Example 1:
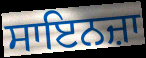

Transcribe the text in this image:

ਸਾਇਨਜ਼ਾ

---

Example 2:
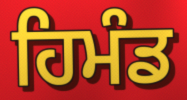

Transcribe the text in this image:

ਹਿਮੰਡ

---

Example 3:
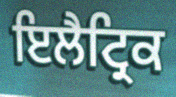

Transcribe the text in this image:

ਇਲੈਟ੍ਰਿਕ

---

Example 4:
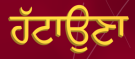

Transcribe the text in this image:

ਹੱਟਾਉਣਾ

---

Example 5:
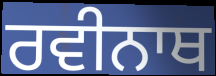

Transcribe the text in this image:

ਰਵੀਨਾਥ